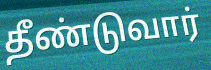
தீண்டுவார்